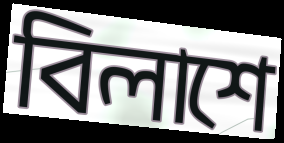
বিলাশে